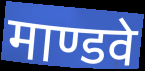
माण्डवे